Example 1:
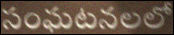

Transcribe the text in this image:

సంఘటనలలో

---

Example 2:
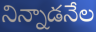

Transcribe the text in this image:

నిన్నాడనేల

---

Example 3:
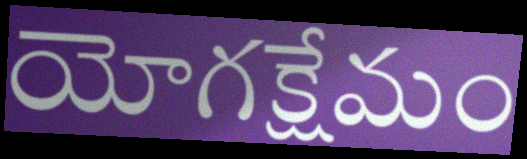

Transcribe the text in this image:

యోగక్షేమం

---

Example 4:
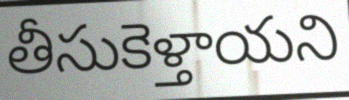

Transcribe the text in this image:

తీసుకెళ్తాయని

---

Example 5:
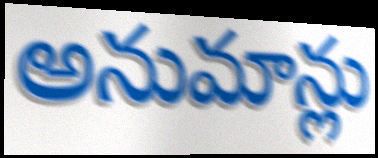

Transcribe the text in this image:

అనుమాన్లు